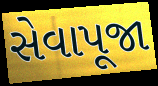
સેવાપૂજા